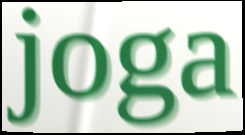
joga